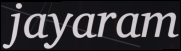
jayaram